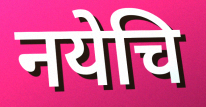
नयेचि